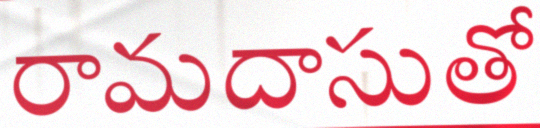
రామదాసుతో